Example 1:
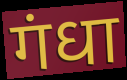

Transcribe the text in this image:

गंधा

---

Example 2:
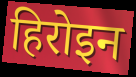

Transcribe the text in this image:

हिरोइन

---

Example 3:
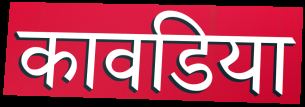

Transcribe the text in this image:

कावडिया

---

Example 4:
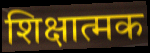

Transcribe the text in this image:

शिक्षात्मक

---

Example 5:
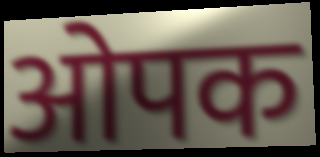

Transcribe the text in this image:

ओपक